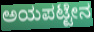
ಅಯಪಟ್ಟೇನ